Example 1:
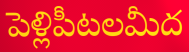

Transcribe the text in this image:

పెళ్లిపీటలమీద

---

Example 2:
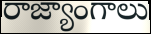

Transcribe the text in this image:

రాజ్యాంగాలు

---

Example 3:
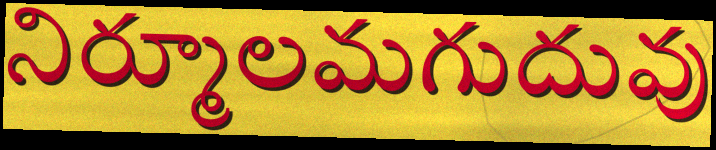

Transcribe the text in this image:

నిర్మూలమగుదువు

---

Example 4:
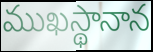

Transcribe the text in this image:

ముఖస్థానాన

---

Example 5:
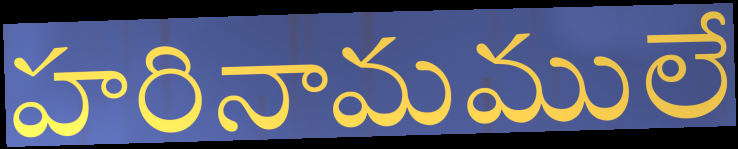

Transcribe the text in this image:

హరినామములే